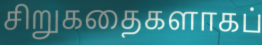
சிறுகதைகளாகப்